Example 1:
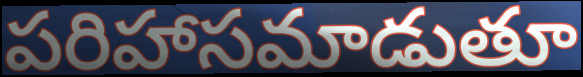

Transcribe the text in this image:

పరిహాసమాడుతూ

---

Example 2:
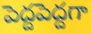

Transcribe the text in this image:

పెద్దపెద్దగా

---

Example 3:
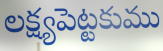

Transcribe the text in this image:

లక్ష్యపెట్టకుము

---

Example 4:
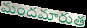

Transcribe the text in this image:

మందమారుత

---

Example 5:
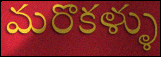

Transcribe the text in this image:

మరొకళ్ళు